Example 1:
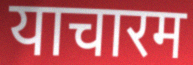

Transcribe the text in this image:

याचारम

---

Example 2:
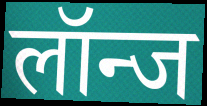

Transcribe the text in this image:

लॉन्ज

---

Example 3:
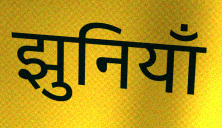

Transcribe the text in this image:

झुनियाँ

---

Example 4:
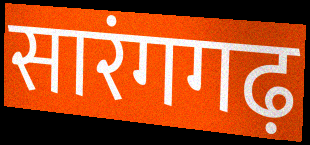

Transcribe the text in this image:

सारंगगढ़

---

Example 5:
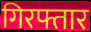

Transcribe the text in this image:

गिरफ्‍तार